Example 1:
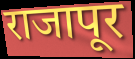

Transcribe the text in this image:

राजापूर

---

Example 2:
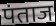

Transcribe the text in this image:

पंताज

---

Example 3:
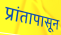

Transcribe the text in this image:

प्रांतापासून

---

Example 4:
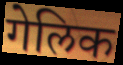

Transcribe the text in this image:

गेलिक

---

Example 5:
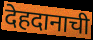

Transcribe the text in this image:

देहदानाची